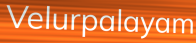
Velurpalayam